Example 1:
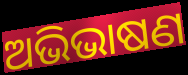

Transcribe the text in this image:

ଅଭିଭାଷଣ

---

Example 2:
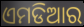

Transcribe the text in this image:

ଏମଡିଆର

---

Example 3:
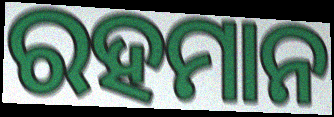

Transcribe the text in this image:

ରହମାନ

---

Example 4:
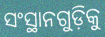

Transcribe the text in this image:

ସଂସ୍ଥାନଗୁଡ଼ିକୁ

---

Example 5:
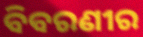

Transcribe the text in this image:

ବିବରଣୀର